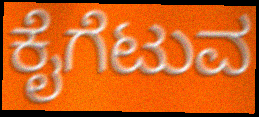
ಕೈಗೆಟುವ